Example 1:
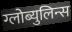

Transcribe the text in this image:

ग्लोब्युलिन्स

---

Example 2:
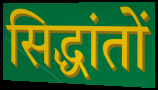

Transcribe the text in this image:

सिद्धांतों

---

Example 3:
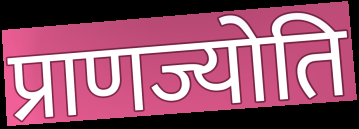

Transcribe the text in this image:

प्राणज्योति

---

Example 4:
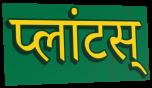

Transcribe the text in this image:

प्लांटस्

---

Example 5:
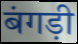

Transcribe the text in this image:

बंगड़ी